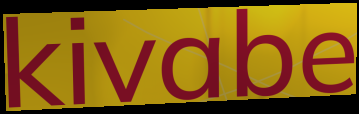
kivabe